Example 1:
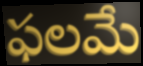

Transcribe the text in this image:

ఫలమే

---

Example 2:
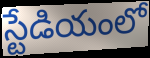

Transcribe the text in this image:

స్టేడియంలో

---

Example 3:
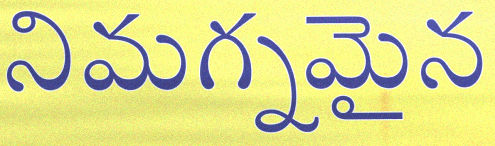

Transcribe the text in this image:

నిమగ్నమైన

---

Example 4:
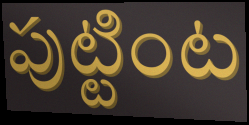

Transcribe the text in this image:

పుట్టింట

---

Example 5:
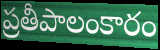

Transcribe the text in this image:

ప్రతీపాలంకారం